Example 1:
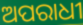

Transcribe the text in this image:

ଅପରାଧୀ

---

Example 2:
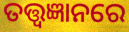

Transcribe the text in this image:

ତତ୍ତ୍ୱଜ୍ଞାନରେ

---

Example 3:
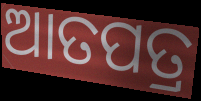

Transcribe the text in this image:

ଆତପତ୍ର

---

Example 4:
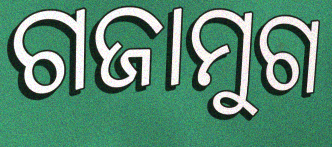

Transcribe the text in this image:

ଗଜାମୁଗ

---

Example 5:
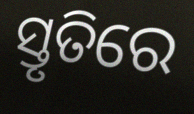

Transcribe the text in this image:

ସ୍ତୃତିରେ